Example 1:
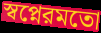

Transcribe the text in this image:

স্বপ্নেরমতো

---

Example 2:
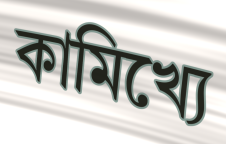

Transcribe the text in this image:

কামিখ্যে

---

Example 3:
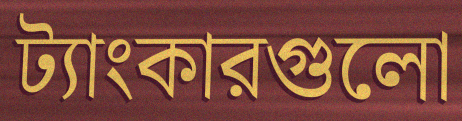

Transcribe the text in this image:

ট্যাংকারগুলো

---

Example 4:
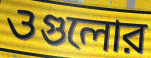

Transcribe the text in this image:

ওগুলোর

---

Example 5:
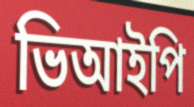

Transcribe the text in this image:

ভিআইপি